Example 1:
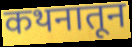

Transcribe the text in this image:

कथनातून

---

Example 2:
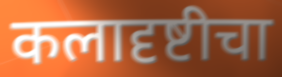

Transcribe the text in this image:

कलादृष्टीचा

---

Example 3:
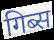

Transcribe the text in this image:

गिब्स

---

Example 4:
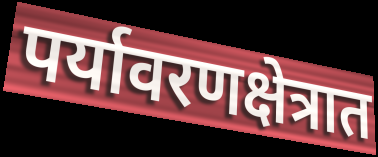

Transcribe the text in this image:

पर्यावरणक्षेत्रात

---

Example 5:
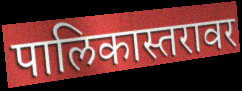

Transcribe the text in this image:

पालिकास्तरावर